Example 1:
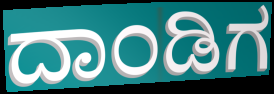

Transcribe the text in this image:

ದಾಂಡಿಗ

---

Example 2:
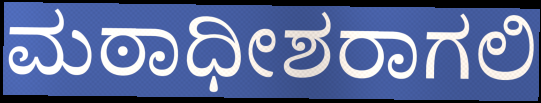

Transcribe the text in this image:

ಮಠಾಧೀಶರಾಗಲಿ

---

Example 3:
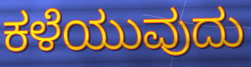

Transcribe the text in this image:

ಕಳೆಯುವುದು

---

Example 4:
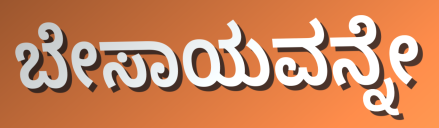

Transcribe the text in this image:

ಬೇಸಾಯವನ್ನೇ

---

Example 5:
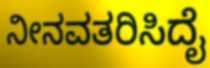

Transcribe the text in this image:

ನೀನವತರಿಸಿದೈ